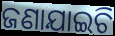
ଜଣାଯାଇଚି